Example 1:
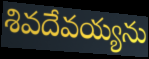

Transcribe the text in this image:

శివదేవయ్యను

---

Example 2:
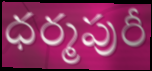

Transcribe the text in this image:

ధర్మపురీ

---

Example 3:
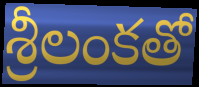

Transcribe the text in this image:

శ్రీలంకతో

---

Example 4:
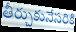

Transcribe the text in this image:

తీర్చుకునేసరికి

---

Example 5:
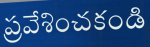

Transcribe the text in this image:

ప్రవేశించకండి